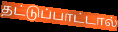
தட்டுப்பாட்டால்